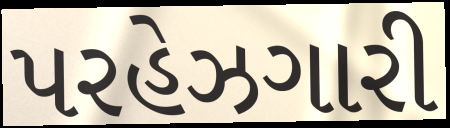
પરહેઝગારી